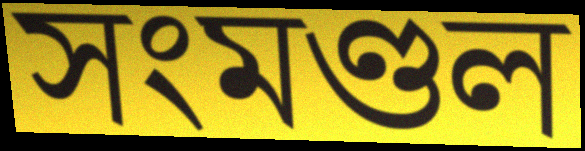
সংমণ্ডল